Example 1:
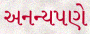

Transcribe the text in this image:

અનન્યપણે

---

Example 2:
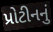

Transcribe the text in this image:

પ્રોટીનનું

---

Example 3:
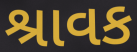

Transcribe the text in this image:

શ્રાવક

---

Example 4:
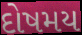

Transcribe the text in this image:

દોષમય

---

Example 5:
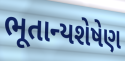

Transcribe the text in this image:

ભૂતાન્યશેષેણ